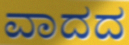
ವಾದದ